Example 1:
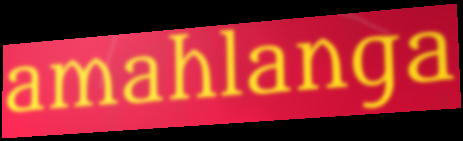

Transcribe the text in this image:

amahlanga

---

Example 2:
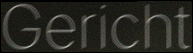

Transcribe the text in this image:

Gericht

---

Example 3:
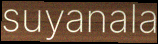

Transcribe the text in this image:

suyanala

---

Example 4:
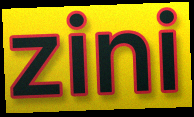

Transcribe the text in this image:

zini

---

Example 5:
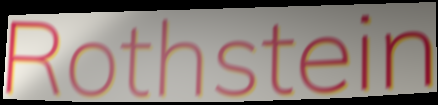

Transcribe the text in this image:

Rothstein